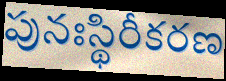
పునఃస్థిరీకరణ